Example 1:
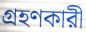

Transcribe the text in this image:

গ্রহণকারী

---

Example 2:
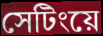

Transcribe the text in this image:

সেটিংয়ে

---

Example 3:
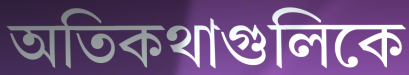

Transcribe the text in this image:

অতিকথাগুলিকে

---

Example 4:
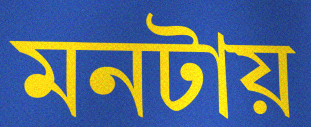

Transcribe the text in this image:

মনটায়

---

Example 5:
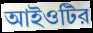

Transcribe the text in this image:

আইওটির